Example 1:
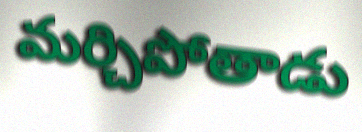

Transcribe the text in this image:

మర్చిపోతాడు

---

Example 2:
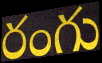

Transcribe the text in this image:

రంగు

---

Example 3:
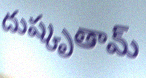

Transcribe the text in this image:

దుష్కృతామ్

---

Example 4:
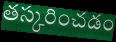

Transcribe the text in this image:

తస్కరించడం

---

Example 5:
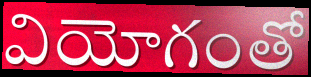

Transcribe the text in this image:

వియోగంతో